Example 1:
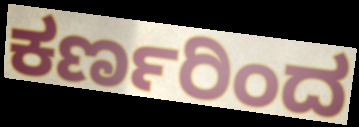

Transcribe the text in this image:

ಕರ್ಣರಿಂದ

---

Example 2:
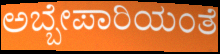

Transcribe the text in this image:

ಅಬ್ಬೇಪಾರಿಯಂತೆ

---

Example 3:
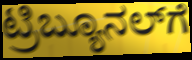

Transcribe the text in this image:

ಟ್ರಿಬ್ಯೂನಲ್‌ಗೆ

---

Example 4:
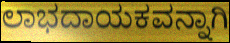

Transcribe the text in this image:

ಲಾಭದಾಯಕವನ್ನಾಗಿ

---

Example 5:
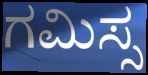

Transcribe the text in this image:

ಗಮಿಸ್ಸ